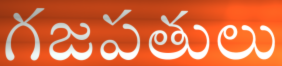
గజపతులు